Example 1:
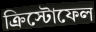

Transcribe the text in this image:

ক্রিস্টোফেল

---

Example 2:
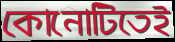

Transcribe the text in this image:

কোনোটিতেই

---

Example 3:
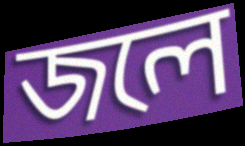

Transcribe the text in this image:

জলে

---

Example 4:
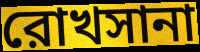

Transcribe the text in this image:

রোখসানা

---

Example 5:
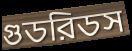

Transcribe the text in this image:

গুডরিডস